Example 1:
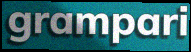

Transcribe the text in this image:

grampari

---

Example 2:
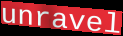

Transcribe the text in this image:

unravel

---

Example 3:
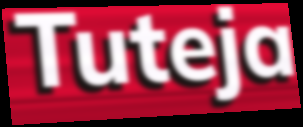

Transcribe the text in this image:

Tuteja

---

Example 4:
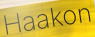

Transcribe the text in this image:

Haakon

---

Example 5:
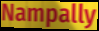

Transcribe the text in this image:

Nampally